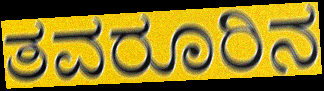
ತವರೂರಿನ